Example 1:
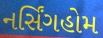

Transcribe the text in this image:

નર્સિંગહોમ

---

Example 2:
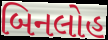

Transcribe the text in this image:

બિનલોહ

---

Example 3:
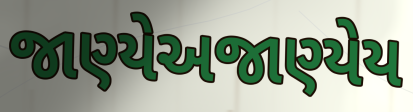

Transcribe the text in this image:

જાણ્યેઅજાણ્યેય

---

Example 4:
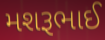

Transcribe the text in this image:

મશરૂભાઈ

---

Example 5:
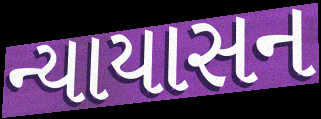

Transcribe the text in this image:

ન્યાયાસન